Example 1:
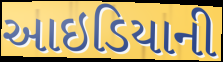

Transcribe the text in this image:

આઇડિયાની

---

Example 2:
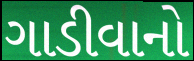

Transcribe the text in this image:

ગાડીવાનો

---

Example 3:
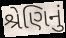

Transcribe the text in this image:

શ્રેણિનું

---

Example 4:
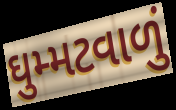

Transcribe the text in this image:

ઘુમ્મટવાળું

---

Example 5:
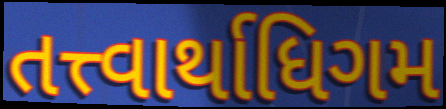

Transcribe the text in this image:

તત્ત્વાર્થાધિગમ